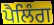
ਪੈਲਿੰਗ